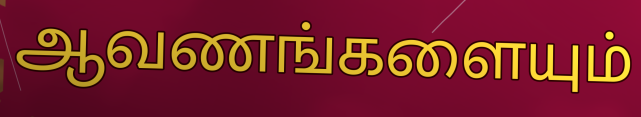
ஆவணங்களையும்